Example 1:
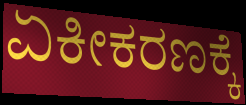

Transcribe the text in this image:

ಏಕೀಕರಣಕ್ಕೆ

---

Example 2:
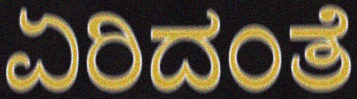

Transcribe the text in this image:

ಏರಿದಂತೆ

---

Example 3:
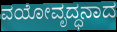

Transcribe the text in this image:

ವಯೋವೃದ್ಧನಾದ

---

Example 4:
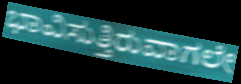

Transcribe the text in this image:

ಭಾವಿಸುತ್ತಿರುವಾಗಲೇ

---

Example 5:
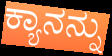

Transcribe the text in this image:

ಕ್ಯಾನನ್ನು